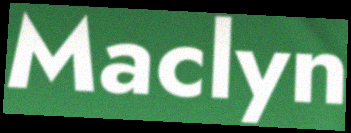
Maclyn